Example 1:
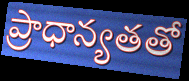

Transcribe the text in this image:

ప్రాధాన్యతతో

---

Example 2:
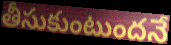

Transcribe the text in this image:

తీసుకుంటుందనే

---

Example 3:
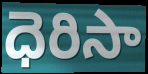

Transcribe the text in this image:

ధెరిసా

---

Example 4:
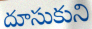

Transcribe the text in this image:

దూసుకుని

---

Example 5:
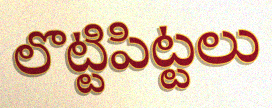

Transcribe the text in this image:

లొట్టిపిట్టలు